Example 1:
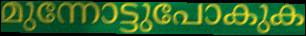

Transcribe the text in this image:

മുന്നോട്ടുപോകുക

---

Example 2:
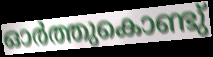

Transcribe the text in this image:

ഓർത്തുകൊണ്ടു്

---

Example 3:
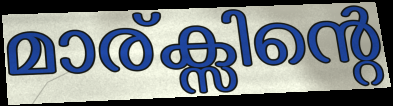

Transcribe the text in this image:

മാര്ക്സിന്റെ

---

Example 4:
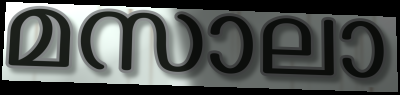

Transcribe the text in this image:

മസാലാ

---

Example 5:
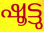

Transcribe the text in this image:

ഷൂട്ടു